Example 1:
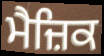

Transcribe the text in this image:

ਮੈਜ਼ਿਕ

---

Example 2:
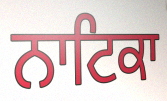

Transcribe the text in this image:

ਨਾਟਿਕਾ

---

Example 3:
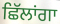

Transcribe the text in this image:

ਛਿੱਲਾਂਗਾ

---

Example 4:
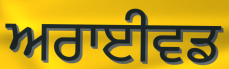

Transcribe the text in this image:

ਅਰਾਈਵਡ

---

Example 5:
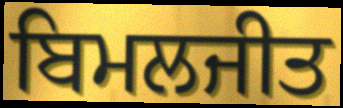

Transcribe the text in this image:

ਬਿਮਲਜੀਤ